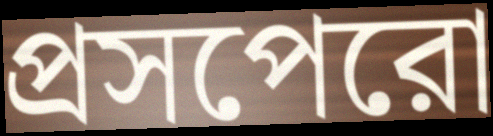
প্রসপেরো